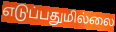
எடுப்பதுமில்லை